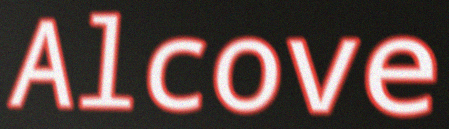
Alcove